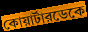
কোয়ার্টারডেকে